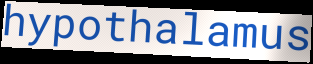
hypothalamus